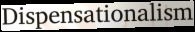
Dispensationalism